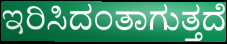
ಇರಿಸಿದಂತಾಗುತ್ತದೆ